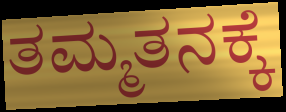
ತಮ್ಮತನಕ್ಕೆ